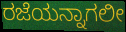
ರಜೆಯನ್ನಾಗಲೀ